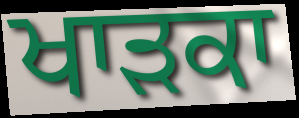
ਖਾੜਕਾ